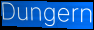
Dungern